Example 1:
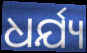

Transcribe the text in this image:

ଧର୍ଯ୍ୟ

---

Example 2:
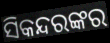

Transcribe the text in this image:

ସିକନ୍ଦରଙ୍କର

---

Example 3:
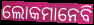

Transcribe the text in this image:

ଲୋକମାନେବି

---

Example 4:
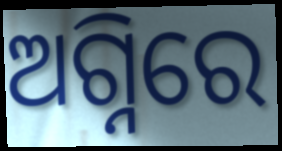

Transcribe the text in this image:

ଅଗ୍ନିରେ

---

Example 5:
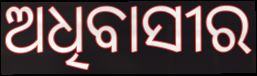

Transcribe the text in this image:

ଅଧିବାସୀର